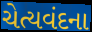
ચેત્યવંદના